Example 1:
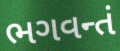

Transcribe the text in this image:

ભગવન્તં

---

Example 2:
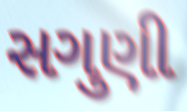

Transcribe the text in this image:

સગુણી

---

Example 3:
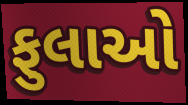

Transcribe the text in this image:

ફુલાઓ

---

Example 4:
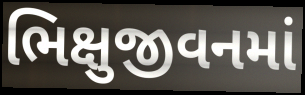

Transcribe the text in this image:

ભિક્ષુજીવનમાં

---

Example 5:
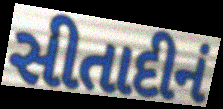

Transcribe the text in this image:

સીતાદીનં